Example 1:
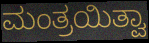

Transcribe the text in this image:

ಮಂತ್ರಯಿತ್ವಾ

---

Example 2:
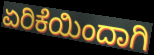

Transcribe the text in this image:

ಏರಿಕೆಯಿಂದಾಗಿ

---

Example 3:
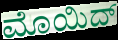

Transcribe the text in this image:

ಮೊಯಿದ್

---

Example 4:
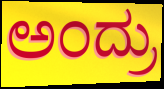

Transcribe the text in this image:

ಅಂದ್ರು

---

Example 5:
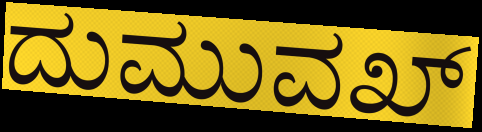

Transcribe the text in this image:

ದುಮುವಖ್